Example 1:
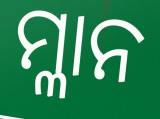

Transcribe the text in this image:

ମ୍ଳାନ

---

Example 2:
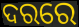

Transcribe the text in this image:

ଦରରେ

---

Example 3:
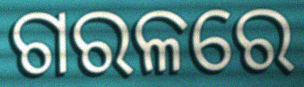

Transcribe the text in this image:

ଗରଳରେ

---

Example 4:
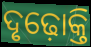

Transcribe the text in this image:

ଦୃଢ଼ୋକ୍ତି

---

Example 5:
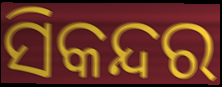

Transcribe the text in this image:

ସିକନ୍ଦର